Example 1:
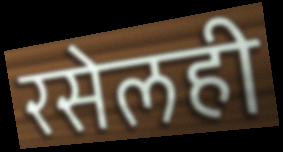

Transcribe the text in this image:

रसेलही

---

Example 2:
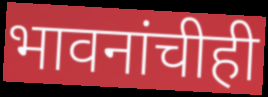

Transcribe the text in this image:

भावनांचीही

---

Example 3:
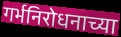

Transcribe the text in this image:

गर्भनिरोधनाच्या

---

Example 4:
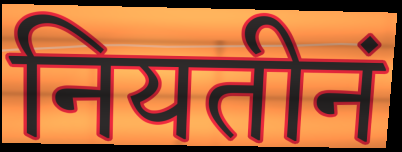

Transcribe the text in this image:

नियतीनं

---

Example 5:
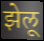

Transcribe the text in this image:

झेलू